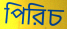
পিরিচ